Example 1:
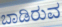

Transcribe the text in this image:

ಬಾಡಿರುವ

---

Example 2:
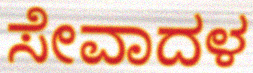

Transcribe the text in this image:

ಸೇವಾದಳ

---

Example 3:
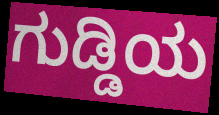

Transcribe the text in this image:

ಗುಡ್ಡಿಯ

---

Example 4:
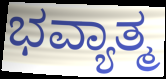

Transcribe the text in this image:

ಭವ್ಯಾತ್ಮ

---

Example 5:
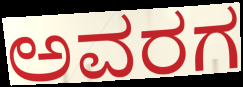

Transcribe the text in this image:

ಅವರಗ